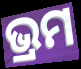
ଭ୍ରମ